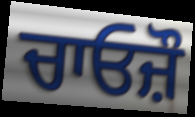
ਚਾਓਜ਼ੌ